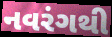
નવરંગથી